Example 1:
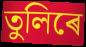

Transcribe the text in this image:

তুলিৰে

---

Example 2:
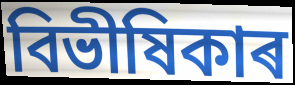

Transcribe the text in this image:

বিভীষিকাৰ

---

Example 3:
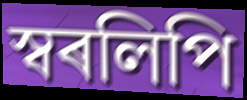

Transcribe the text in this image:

স্বৰলিপি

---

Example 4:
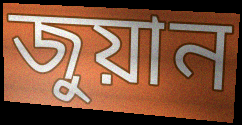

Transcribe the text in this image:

জুয়ান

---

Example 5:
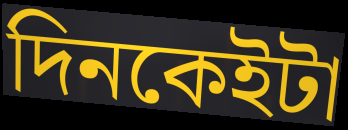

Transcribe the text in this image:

দিনকেইটা